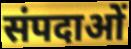
संपदाओं